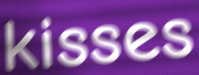
kisses